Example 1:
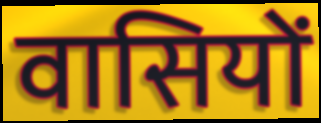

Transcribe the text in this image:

वासियों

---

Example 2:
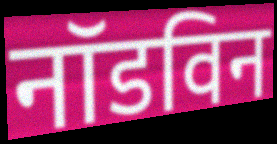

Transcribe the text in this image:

नॉडविन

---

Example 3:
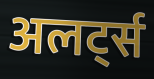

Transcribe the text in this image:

अलर्ट्स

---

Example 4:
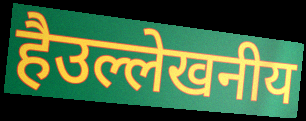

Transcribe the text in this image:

हैउल्लेखनीय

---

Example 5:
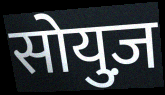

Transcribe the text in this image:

सोयुज़